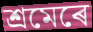
শ্ৰমেৰে